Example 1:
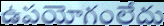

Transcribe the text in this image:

ఉపయోగంలేదు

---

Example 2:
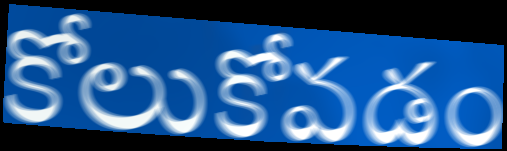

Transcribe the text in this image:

కోలుకోవడం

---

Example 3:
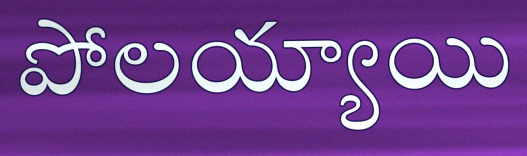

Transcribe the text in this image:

పోలయ్యాయి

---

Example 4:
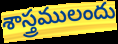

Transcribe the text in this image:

శాస్త్రములందు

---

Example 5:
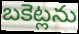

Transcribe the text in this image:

బకెట్లను